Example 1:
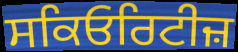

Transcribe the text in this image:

ਸਕਿਓਰਿਟੀਜ਼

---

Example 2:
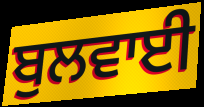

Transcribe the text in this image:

ਬੁਲਵਾਈ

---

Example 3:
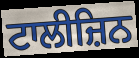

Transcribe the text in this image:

ਟਾਲੀਜ਼ਿਨ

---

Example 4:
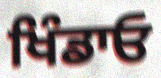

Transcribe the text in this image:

ਖਿੰਡਾਓ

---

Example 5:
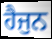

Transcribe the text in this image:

ਹੈਜੁਨ